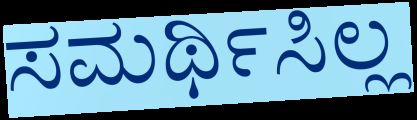
ಸಮರ್ಥಿಸಿಲ್ಲ